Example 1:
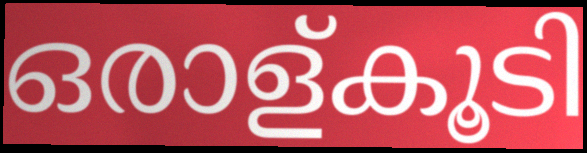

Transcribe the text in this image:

ഒരാള്കൂടി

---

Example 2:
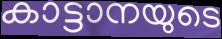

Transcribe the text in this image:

കാട്ടാനയുടെ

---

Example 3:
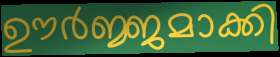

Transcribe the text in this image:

ഊർജ്ജമാക്കി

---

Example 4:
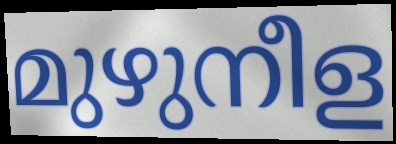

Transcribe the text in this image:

മുഴുനീള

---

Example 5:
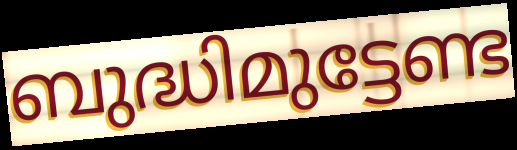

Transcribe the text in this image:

ബുദ്ധിമുട്ടേണ്ട